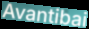
Avantibai